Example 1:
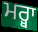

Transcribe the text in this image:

ਮਰ੍ਥਾ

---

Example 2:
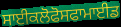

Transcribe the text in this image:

ਸਾਈਕਲੋਫੋਸਫਾਮਾਈਡ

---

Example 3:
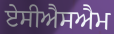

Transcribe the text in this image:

ਏਸੀਐਸਐਮ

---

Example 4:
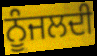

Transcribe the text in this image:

ਨੂੰਜਲਦੀ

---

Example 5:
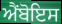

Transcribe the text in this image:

ਐਂਬੋਇਸ